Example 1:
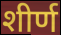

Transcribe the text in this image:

शीर्ण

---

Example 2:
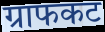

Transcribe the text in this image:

ग्राफकट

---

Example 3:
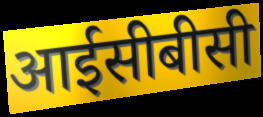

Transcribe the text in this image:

आईसीबीसी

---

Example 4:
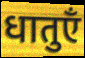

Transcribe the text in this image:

धातुएँ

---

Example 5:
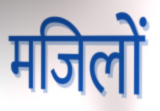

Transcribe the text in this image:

मजिलों